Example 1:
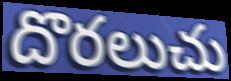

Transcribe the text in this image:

దొరలుచు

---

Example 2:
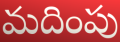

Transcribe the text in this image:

మదింపు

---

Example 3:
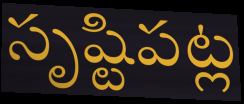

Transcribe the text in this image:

సృష్టిపట్ల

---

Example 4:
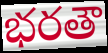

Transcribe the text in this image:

భరతౌ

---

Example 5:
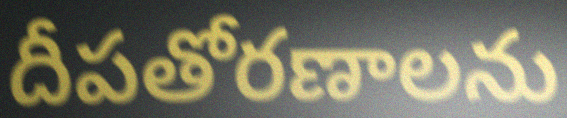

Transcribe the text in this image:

దీపతోరణాలను